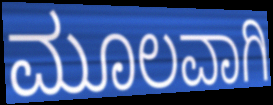
ಮೂಲವಾಗಿ